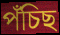
পঁচিছ